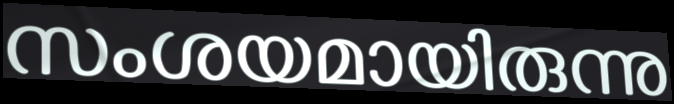
സംശയമായിരുന്നു